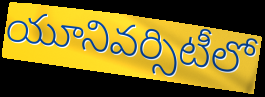
యూనివర్సిటీలో